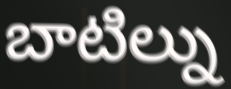
బాటిల్ను